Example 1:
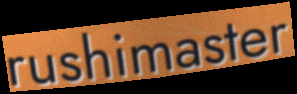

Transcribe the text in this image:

rushimaster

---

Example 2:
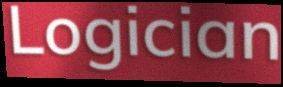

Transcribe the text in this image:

Logician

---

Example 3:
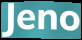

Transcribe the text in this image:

Jeno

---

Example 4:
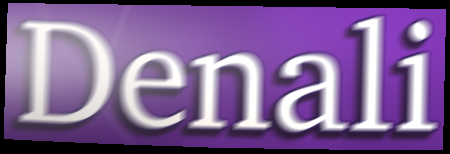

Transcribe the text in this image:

Denali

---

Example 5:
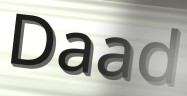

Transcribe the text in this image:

Daad